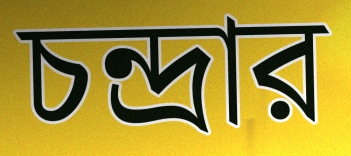
চন্দ্রার